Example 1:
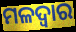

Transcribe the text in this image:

ମଳଦ୍ୱାର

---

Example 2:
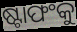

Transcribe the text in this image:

ଷ୍ଟାଫଂକୁ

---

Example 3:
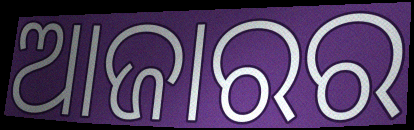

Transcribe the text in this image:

ଆଜାରର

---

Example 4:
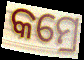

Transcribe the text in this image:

କମ୍ରେ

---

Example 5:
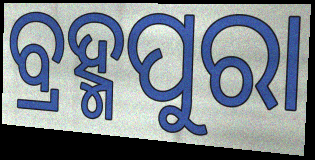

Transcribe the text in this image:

ବ୍ରହ୍ମପୁରା